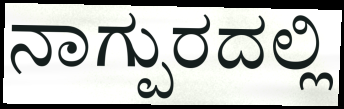
ನಾಗ್ಪುರದಲ್ಲಿ